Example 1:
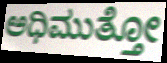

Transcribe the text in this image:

ಅಧಿಮುತ್ತೋ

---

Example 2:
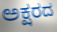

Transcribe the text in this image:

ಅಕ್ಷರದ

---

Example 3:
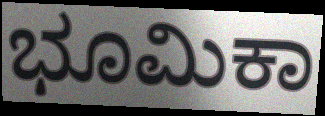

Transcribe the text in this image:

ಭೂಮಿಕಾ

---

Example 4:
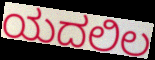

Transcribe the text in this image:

ಯದಲಿಲ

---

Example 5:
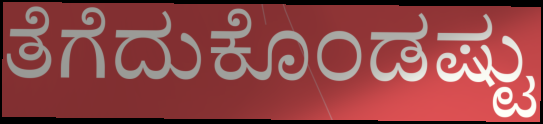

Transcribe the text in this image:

ತೆಗೆದುಕೊಂಡಷ್ಟು